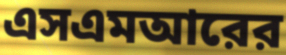
এসএমআরের